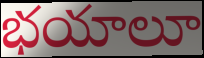
భయాలూ